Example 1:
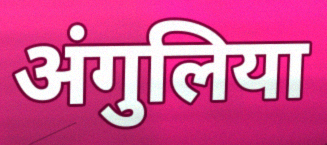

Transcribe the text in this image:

अंगुलिया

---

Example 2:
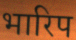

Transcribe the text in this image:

भारिप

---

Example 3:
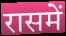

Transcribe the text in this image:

रासमें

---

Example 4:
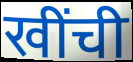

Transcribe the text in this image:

खींची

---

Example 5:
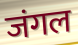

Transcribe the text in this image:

जंगल